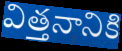
విత్తనానికి